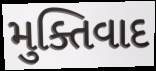
મુક્તિવાદ